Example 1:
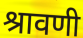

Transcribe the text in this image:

श्रावणी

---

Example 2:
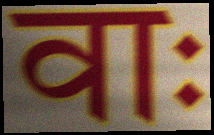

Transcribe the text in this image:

वाः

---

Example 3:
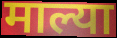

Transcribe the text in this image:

माल्या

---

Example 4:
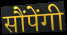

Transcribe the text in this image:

सौंपेंगी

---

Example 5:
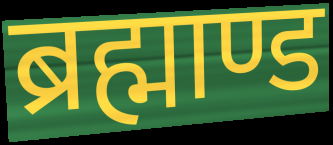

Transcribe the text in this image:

ब्रह्माण्ड